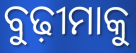
ବୁଢ଼ୀମାକୁ